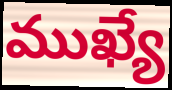
ముఖ్యే